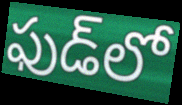
ఫుడ్‌లో